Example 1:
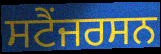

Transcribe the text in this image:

ਸਟੈਂਜਰਸਨ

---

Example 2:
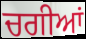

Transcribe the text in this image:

ਚਗੀਆਂ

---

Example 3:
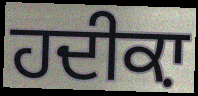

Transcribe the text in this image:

ਹਦੀਕ਼ਾ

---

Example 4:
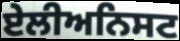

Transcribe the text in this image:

ਏਲੀਅਨਿਸਟ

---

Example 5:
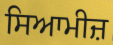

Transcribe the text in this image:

ਸਿਆਮੀਜ਼